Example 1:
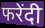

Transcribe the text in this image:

फरेंदी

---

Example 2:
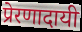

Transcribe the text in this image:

प्रेरणादायी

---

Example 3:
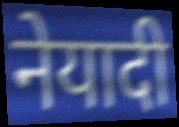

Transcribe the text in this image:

नेयादी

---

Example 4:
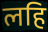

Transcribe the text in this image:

लहि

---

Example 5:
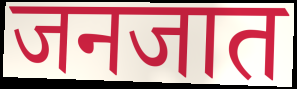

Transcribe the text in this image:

जनजात